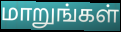
மாறுங்கள்